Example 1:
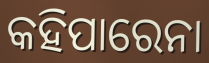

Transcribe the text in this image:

କହିପାରେନା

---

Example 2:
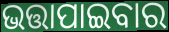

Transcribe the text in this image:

ଭତ୍ତାପାଇବାର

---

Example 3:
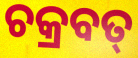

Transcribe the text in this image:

ଚକ୍ରବତ୍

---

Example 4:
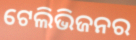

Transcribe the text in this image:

ଟେଲିଭିଜନର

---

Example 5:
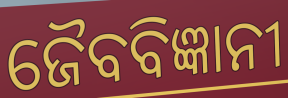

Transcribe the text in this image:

ଜୈବବିଜ୍ଞାନୀ